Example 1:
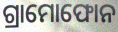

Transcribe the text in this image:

ଗ୍ରାମୋଫୋନ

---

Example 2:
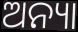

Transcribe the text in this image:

ଅନ୍ୟା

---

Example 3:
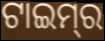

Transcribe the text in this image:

ଟାଇମ୍‌ର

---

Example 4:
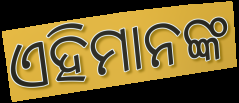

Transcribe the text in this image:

ଏହିମାନଙ୍କ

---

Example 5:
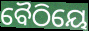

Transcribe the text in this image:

ବୈଠିୟେ